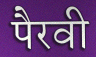
पैरवी